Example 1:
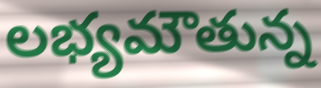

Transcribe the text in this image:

లభ్యమౌతున్న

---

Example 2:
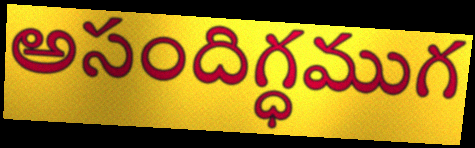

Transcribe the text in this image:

అసందిగ్ధముగ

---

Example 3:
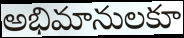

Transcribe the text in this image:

అభిమానులకూ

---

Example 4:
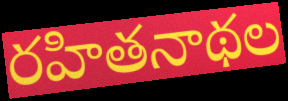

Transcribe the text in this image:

రహితనాథల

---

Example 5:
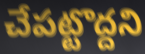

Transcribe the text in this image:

చేపట్టొద్దని